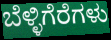
ಬೆಳ್ಳಿಗೆರೆಗಳು